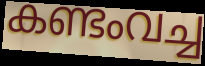
കണ്ടംവച്ച